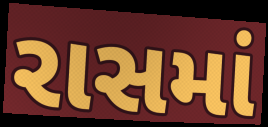
રાસમાં